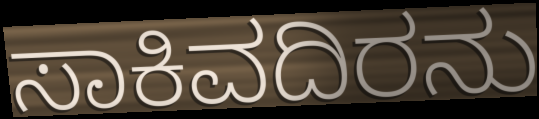
ಸಾಕಿವದಿರನು